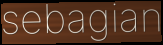
sebagian